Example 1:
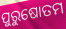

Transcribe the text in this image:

ପୁରୁଷୋତମ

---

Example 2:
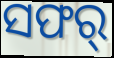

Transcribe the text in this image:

ସଫର୍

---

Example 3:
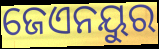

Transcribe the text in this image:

ଜେଏନୟୁର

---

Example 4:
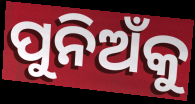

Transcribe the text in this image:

ପୁନିଅଁକୁ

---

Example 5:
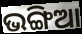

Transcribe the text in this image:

ଭଙ୍ଗିଆ